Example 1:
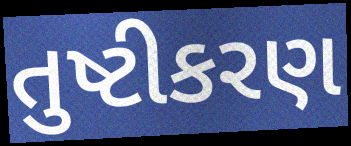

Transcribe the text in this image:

તુષ્ટીકરણ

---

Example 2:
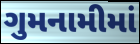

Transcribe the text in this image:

ગુમનામીમાં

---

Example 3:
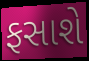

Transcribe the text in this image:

ફસાશે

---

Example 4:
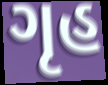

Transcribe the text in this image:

ગૃહ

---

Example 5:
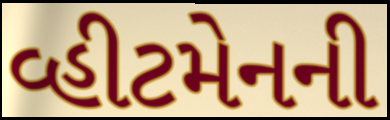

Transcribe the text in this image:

વ્હીટમેનની